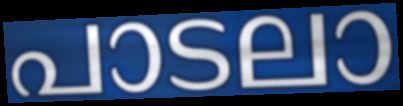
പാടലാ